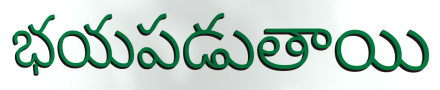
భయపడుతాయి